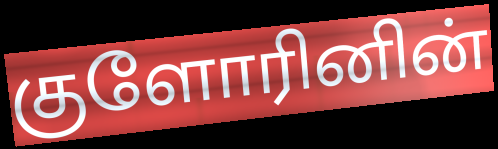
குளோரினின்